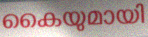
കൈയുമായി